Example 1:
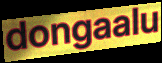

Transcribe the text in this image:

dongaalu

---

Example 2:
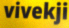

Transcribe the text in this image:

vivekji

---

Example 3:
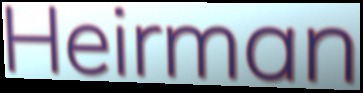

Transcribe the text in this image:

Heirman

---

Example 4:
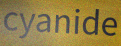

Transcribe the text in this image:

cyanide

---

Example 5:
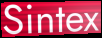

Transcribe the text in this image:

Sintex